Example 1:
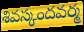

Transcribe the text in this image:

శివస్కందవర్మ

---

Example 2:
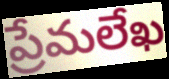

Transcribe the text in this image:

ప్రేమలేఖ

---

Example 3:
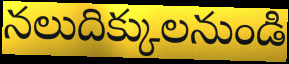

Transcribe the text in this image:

నలుదిక్కులనుండి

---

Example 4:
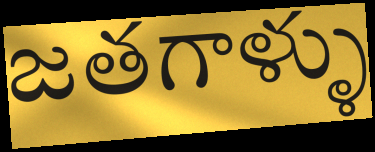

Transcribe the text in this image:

జతగాళ్ళు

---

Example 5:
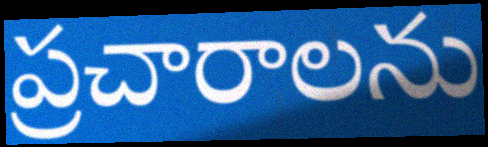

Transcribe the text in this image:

ప్రచారాలను